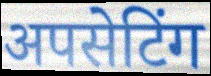
अपसेटिंग